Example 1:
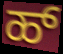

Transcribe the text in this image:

ಹ್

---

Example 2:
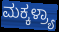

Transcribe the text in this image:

ಮಕ್ಕಳ್ರ್ಯಾ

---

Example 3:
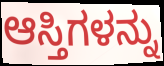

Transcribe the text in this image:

ಆಸ್ತಿಗಳನ್ನು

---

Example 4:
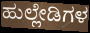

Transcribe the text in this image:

ಹುಲ್ಲೇಡಿಗಳ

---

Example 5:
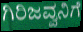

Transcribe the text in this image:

ಗಿರಿಜವ್ವನಿಗೆ